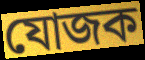
যোজক